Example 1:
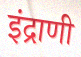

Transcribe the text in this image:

इंद्राणी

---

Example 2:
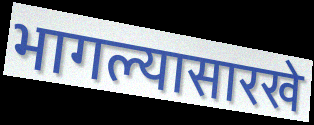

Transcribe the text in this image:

भागल्यासारखे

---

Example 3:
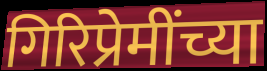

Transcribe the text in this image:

गिरिप्रेमींच्या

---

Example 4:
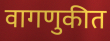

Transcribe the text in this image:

वागणुकीत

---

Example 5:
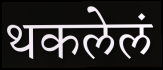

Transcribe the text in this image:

थकलेलं